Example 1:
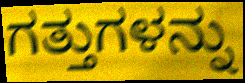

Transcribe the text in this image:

ಗತ್ತುಗಳನ್ನು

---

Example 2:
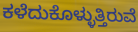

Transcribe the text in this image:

ಕಳೆದುಕೊಳ್ಳುತ್ತಿರುವೆ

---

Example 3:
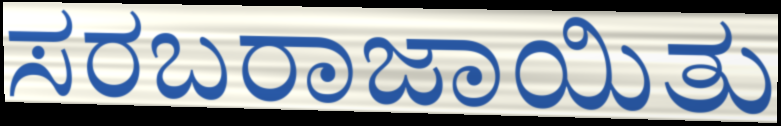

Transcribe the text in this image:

ಸರಬರಾಜಾಯಿತು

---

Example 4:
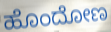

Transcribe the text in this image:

ಹೊಂದೋಣ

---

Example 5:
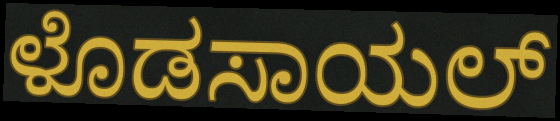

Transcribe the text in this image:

ಳೊಡಸಾಯಲ್